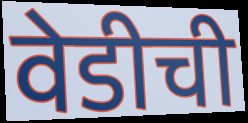
वेडीची